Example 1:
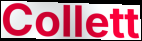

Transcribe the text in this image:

Collett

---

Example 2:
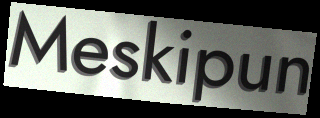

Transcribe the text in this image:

Meskipun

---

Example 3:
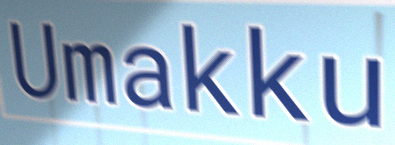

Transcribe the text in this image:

Umakku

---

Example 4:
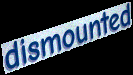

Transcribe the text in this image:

dismounted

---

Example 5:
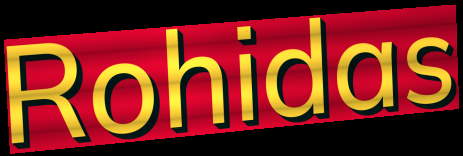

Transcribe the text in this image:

Rohidas